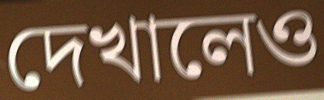
দেখালেও